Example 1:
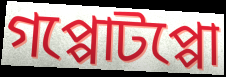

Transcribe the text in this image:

গপ্পোটপ্পো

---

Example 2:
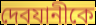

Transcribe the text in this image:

দেবযানীকে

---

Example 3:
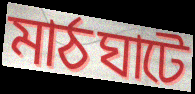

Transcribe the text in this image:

মাঠঘাটে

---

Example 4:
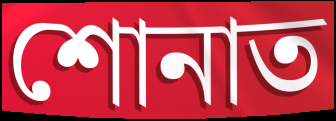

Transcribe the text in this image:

শোনাত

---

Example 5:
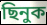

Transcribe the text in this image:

ছিনুক